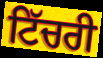
ਟਿੱਚਰੀ